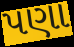
પણા